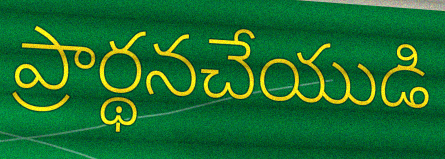
ప్రార్థనచేయుడి